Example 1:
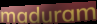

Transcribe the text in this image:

maduram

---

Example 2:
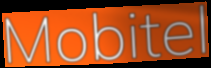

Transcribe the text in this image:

Mobitel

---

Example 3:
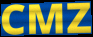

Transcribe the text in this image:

CMZ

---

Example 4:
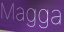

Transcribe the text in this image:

Magga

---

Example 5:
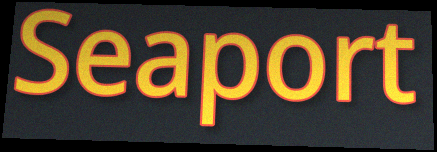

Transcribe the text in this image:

Seaport